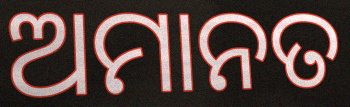
ଅମାନତ